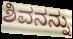
ಶಿವನನ್ನು